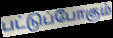
பட்டுப்போகும்